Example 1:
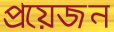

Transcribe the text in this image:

প্রয়েজন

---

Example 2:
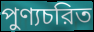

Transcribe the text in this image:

পুণ্যচরিত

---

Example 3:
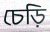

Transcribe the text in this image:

চেড়ি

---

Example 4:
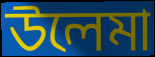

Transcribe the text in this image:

উলেমা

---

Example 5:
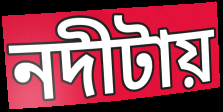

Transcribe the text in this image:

নদীটায়